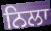
ਨਿਲਾ